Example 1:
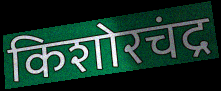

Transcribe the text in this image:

किशोरचंद्र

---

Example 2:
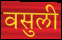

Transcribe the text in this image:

वसुली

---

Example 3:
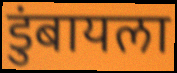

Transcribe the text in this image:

डुंबायला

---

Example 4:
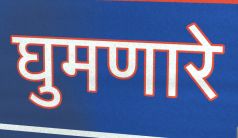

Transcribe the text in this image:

घुमणारे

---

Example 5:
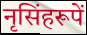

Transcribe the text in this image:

नृसिंहरूपें